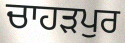
ਚਾਹਡ਼ਪੁਰ